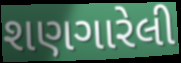
શણગારેલી